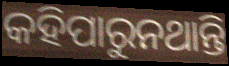
କହିପାରୁନଥାନ୍ତି